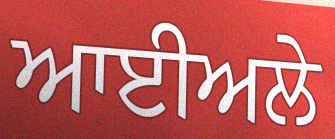
ਆਈਅਲੇ